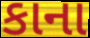
કાના